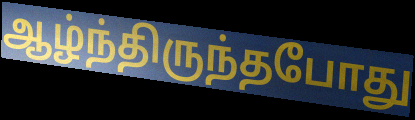
ஆழ்ந்திருந்தபோது